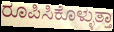
ರೂಪಿಸಿಕೊಳ್ಳುತ್ತಾ